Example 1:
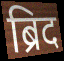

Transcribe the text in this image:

ब्रिद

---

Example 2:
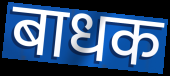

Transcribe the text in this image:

बाधक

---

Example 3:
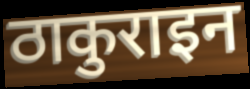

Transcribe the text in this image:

ठाकुराइन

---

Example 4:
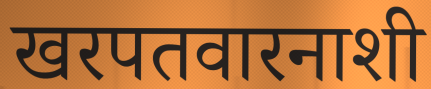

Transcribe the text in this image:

खरपतवारनाशी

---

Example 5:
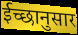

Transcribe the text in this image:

ईच्छानुसार